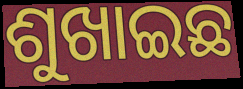
ଶୁଖାଇଛ